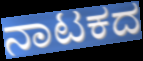
ನಾಟಕದ